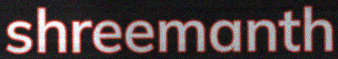
shreemanth